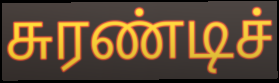
சுரண்டிச்